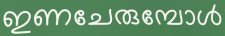
ഇണചേരുമ്പോൾ